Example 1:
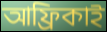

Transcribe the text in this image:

আফ্রিকাই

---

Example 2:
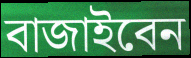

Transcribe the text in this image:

বাজাইবেন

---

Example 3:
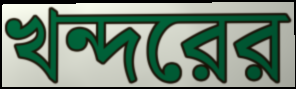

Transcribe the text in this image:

খন্দরের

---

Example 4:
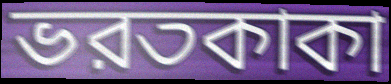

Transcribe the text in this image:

ভরতকাকা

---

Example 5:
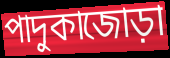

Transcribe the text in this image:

পাদুকাজোড়া